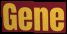
Gene